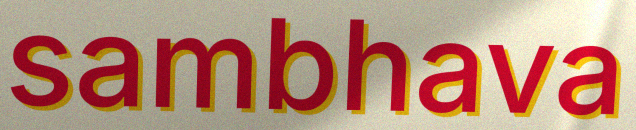
sambhava